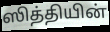
ஸித்தியின்